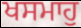
ਖਸਮਾਹੁ